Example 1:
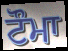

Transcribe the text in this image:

ਟੌਮਾ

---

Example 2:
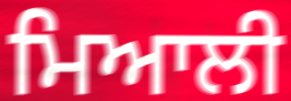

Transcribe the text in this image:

ਮਿਆਲੀ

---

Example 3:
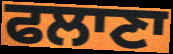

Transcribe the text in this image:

ਫਲਾਣਾ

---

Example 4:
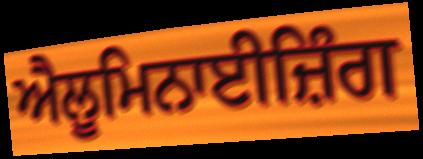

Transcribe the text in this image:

ਐਲੂਮਿਨਾਈਜ਼ਿੰਗ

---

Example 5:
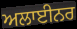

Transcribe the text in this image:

ਅਲਾਈਨਰ